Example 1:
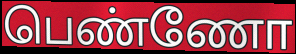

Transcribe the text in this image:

பெண்ணோ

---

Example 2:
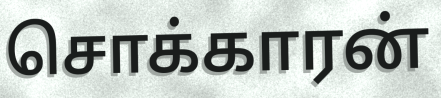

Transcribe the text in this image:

சொக்காரன்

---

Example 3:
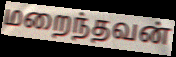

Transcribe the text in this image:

மறைந்தவன்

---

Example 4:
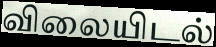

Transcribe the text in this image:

விலையிடல்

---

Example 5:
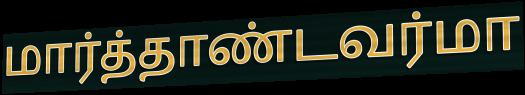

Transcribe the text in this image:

மார்த்தாண்டவர்மா